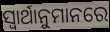
ସ୍ୱାର୍ଥାନୁମାନରେ